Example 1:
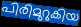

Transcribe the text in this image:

പിരിമുറുകിയ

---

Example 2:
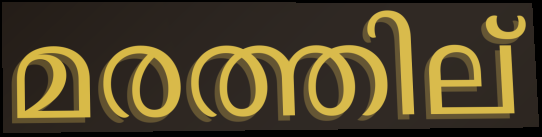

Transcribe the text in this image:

മരത്തില്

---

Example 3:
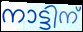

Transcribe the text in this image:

നാട്ടിന്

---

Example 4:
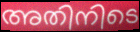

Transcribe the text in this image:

അതിനിടെ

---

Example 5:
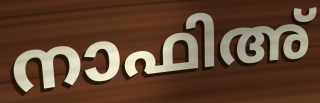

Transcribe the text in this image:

നാഫിഅ്